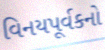
વિનયપૂર્વકનો